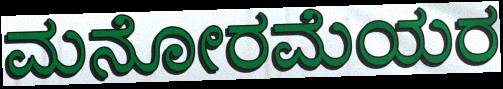
ಮನೋರಮೆಯರ